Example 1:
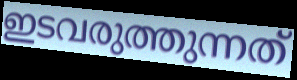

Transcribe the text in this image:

ഇടവരുത്തുന്നത്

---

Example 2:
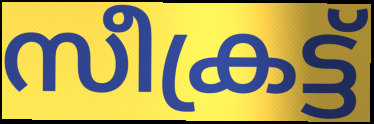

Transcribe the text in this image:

സീക്രട്ട്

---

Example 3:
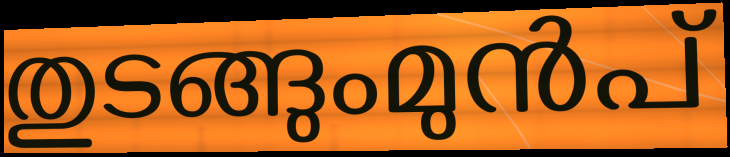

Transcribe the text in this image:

തുടങ്ങുംമുൻപ്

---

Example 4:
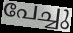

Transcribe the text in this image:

പേച്ചു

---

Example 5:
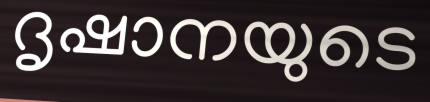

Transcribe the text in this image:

ദൃഷാനയുടെ